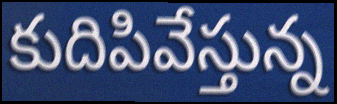
కుదిపివేస్తున్న